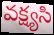
వక్ష్యసి